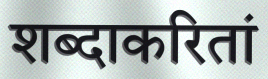
शब्दाकरितां